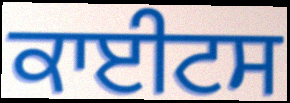
ਕਾਈਟਸ